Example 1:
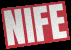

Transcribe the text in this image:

NIFE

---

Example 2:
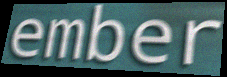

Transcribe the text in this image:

ember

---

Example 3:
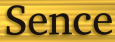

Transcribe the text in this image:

Sence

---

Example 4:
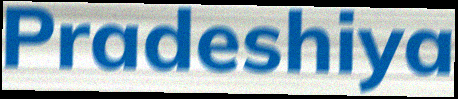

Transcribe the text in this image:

Pradeshiya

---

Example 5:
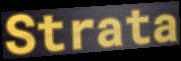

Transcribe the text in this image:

Strata